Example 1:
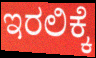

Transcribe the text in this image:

ಇರಲಿಕ್ಕೆ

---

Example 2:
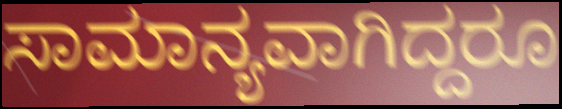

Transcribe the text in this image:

ಸಾಮಾನ್ಯವಾಗಿದ್ದರೂ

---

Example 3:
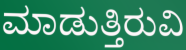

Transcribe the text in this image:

ಮಾಡುತ್ತಿರುವಿ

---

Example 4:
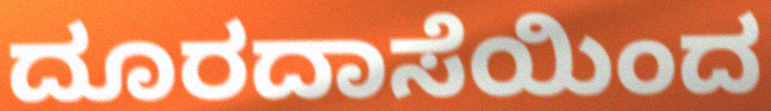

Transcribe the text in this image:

ದೂರದಾಸೆಯಿಂದ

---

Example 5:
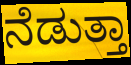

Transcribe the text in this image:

ನೆಡುತ್ತಾ